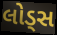
લોડ્સ